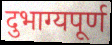
दुभाग्यपूर्ण